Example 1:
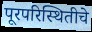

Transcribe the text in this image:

पूरपरिस्थितीचे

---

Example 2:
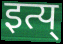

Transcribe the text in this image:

इत्य्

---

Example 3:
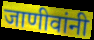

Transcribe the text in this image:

जाणीवांनी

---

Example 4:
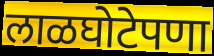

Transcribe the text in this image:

लाळघोटेपणा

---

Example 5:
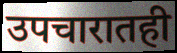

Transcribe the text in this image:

उपचारातही